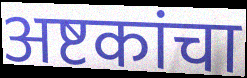
अष्टकांचा